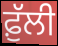
ਫ਼ੁੱਲੀ